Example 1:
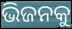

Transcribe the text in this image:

ଭିଜନକୁ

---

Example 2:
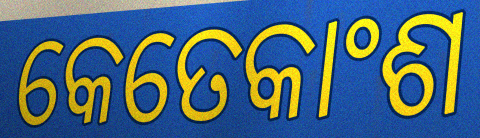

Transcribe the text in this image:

କେତେକାଂଶ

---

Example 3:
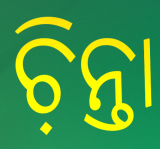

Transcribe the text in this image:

ଚ଼ିନ୍ତା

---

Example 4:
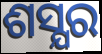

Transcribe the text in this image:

ଶସ୍ଯର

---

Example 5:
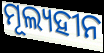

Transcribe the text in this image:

ମୂଲ୍ଯହୀନ